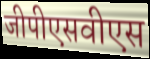
जीपीएसवीएस